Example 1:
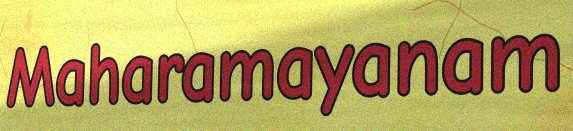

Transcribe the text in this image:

Maharamayanam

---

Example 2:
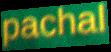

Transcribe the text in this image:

pachal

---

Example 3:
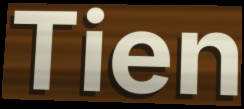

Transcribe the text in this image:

Tien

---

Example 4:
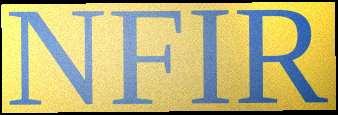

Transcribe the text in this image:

NFIR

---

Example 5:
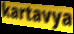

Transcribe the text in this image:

kartavya